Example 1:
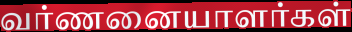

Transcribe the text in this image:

வர்ணனையாளர்கள்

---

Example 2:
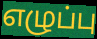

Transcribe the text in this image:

எழுப்பு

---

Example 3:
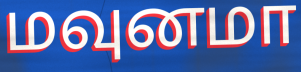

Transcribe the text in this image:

மவுனமா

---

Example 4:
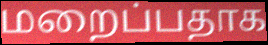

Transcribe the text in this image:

மறைப்பதாக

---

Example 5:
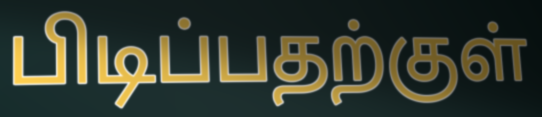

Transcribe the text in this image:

பிடிப்பதற்குள்